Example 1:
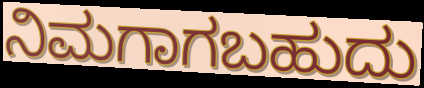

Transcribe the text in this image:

ನಿಮಗಾಗಬಹುದು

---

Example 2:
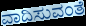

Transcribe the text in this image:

ವಾದಿಸುವಂತೆ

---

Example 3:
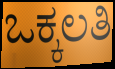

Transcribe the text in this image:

ಒಕ್ಕಲತಿ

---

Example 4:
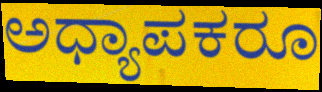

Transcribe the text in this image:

ಅಧ್ಯಾಪಕರೂ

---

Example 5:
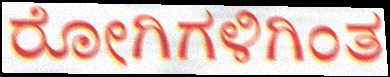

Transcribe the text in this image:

ರೋಗಿಗಳಿಗಿಂತ